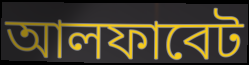
আলফাবেট